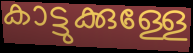
കാട്ടുക്കുള്ളേ